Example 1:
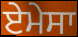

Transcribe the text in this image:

ਏਮੇਸਾ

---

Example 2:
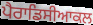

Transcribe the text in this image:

ਪੈਰਾਡਿਸੀਆਕਲ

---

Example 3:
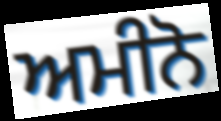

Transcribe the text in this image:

ਅਮੀਨੋ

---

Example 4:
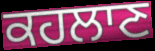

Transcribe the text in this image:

ਕਹਲਾਣ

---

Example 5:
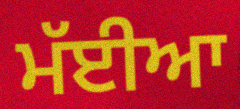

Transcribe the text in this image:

ਮੱਈਆ